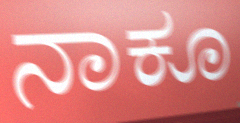
ನಾಕೂ